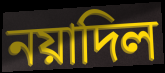
নয়াদিল